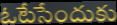
ఓటేసేందుకు